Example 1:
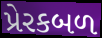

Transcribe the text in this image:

પ્રેરકબળ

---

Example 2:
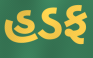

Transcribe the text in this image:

હડફ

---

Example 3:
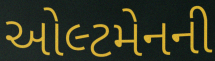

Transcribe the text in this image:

ઓલ્ટમેનની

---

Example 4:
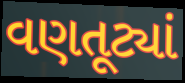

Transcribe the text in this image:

વણતૂટ્યાં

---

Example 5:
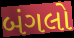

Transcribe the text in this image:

બંગલો